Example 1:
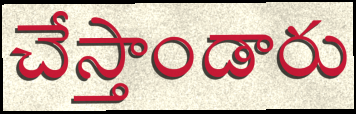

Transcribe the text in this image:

చేస్తాండారు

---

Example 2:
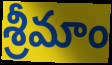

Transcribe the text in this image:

శ్రీమాం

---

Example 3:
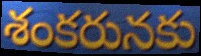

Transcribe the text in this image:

శంకరునకు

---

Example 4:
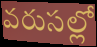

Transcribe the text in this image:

వరుసల్లో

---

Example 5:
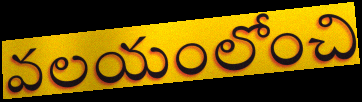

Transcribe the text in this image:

వలయంలోంచి